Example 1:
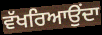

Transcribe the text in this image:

ਵੱਖਰਿਆਉਂਦਾ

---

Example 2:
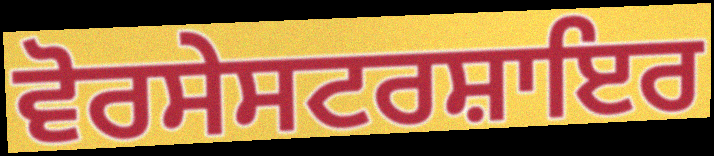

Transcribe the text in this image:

ਵੋਰਸੇਸਟਰਸ਼ਾਇਰ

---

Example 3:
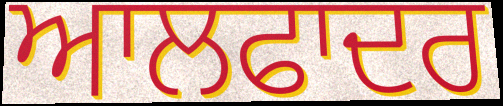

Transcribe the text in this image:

ਆਲਫਾਦਰ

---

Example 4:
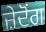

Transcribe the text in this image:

ਜ਼ੇਦੋਂਗ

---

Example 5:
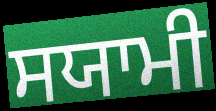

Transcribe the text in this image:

ਸਯਾਮੀ